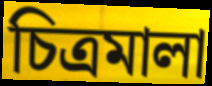
চিত্রমালা